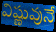
విష్ణువునే